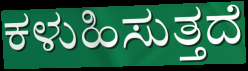
ಕಳುಹಿಸುತ್ತದೆ